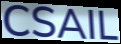
CSAIL